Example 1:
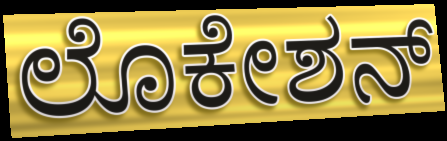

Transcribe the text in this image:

ಲೊಕೇಶನ್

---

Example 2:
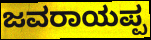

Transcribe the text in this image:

ಜವರಾಯಪ್ಪ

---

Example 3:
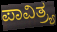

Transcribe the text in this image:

ಪಾವಿತ್ರ್ಯ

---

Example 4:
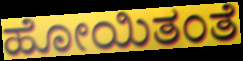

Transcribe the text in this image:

ಹೋಯಿತಂತೆ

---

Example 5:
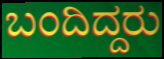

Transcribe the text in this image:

ಬಂದಿದ್ದರು